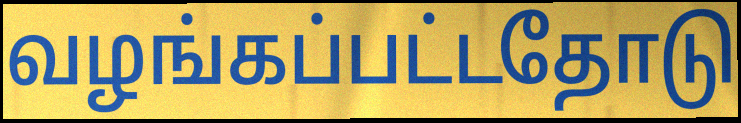
வழங்கப்பட்டதோடு